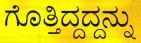
ಗೊತ್ತಿದ್ದದ್ದನ್ನು